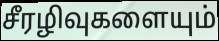
சீரழிவுகளையும்